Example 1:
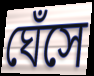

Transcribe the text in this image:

ঘেঁসে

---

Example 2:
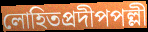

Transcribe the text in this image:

লোহিতপ্রদীপপল্লী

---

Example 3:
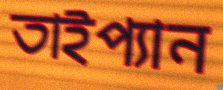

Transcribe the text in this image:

তাইপ্যান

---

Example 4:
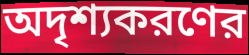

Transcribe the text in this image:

অদৃশ্যকরণের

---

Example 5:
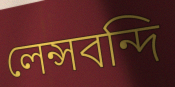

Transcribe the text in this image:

লেন্সবন্দি